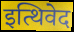
इत्थिवेद